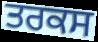
ਤਰਕਸ